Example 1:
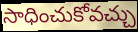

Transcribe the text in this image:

సాధించుకోవచ్చు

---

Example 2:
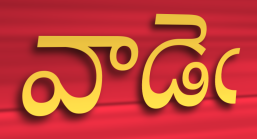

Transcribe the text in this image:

వాడెఁ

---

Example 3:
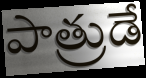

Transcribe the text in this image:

పాత్రుడే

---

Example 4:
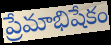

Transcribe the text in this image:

ప్రేమాభిషేకం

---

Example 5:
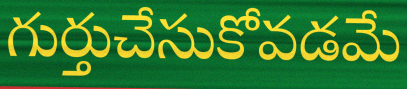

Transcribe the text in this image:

గుర్తుచేసుకోవడమే